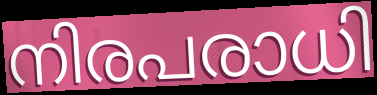
നിരപരാധി